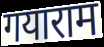
गयाराम